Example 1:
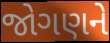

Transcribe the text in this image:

જોગણને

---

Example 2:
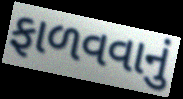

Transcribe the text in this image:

ફાળવવાનું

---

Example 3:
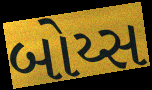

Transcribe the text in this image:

બોય્સ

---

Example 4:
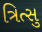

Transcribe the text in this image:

ત્રિત્સુ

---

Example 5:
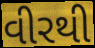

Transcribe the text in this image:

વીરથી